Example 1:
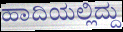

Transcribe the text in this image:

ಹಾದಿಯಲ್ಲಿದ್ದು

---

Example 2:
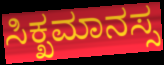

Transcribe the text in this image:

ಸಿಕ್ಖಮಾನಸ್ಸ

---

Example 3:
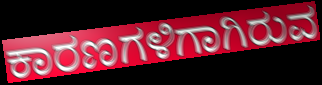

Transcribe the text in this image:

ಕಾರಣಗಳಿಗಾಗಿರುವ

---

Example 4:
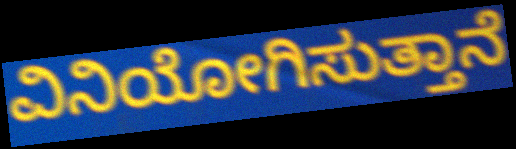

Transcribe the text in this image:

ವಿನಿಯೋಗಿಸುತ್ತಾನೆ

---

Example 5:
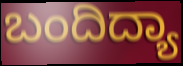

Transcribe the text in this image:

ಬಂದಿದ್ಯಾ